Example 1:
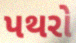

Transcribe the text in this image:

પથરો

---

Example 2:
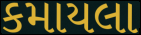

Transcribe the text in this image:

કમાયલા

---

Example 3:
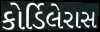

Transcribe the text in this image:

કોર્ડિલેરાસ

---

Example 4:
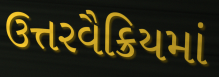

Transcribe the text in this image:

ઉત્તરવૈક્રિયમાં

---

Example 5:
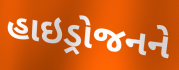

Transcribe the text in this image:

હાઇડ્રોજનને